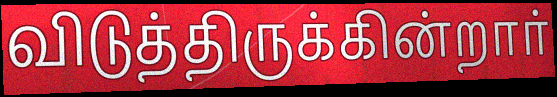
விடுத்திருக்கின்றார்